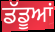
ਡੱਡੂਆਂ